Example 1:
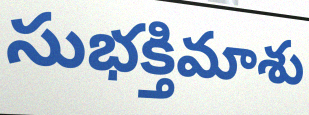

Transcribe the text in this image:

సుభక్తిమాశు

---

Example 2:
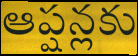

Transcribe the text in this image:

ఆప్షన్లకు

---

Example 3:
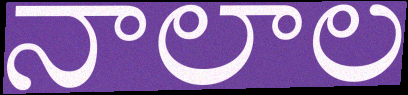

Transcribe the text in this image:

నాలాల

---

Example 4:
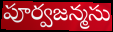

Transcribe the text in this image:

పూర్వజన్మసు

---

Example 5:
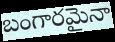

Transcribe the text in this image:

బంగారమైనా